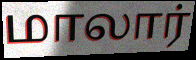
மாலார்